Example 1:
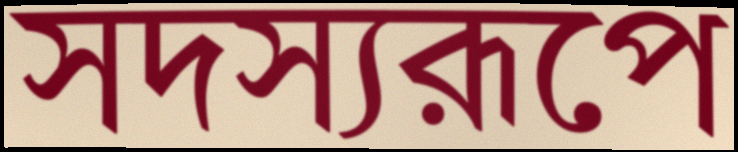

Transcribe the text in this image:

সদস্যরূপে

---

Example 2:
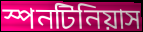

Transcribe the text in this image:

স্পনটিনিয়াস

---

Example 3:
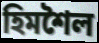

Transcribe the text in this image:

হিমশৈল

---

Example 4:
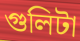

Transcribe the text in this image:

গুলিটা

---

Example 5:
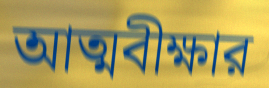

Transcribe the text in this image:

আত্মবীক্ষার